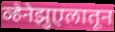
व्हेनेझुएलातून